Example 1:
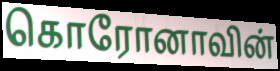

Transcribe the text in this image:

கொரோனாவின்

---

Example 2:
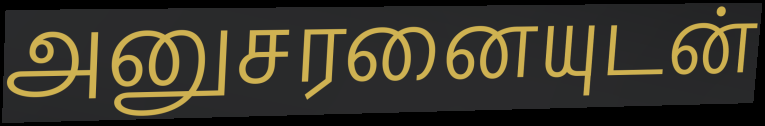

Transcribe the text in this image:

அனுசரனையுடன்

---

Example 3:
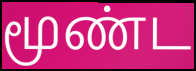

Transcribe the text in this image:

மூண்ட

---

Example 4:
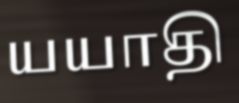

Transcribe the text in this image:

யயாதி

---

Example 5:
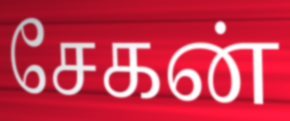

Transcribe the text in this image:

சேகன்